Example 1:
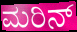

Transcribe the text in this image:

ಮರಿನ್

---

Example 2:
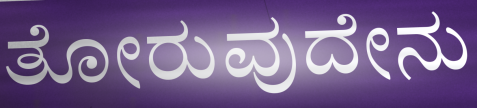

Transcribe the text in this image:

ತೋರುವುದೇನು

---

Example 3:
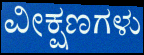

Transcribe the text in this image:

ವೀಕ್ಷಣಗಳು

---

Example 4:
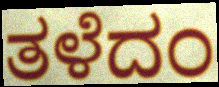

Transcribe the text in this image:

ತಳೆದಂ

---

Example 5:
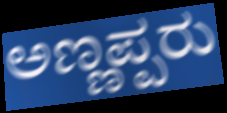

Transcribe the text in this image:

ಅಣ್ಣಪ್ಪರು